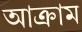
আক্ৰাম